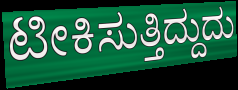
ಟೀಕಿಸುತ್ತಿದ್ದುದು